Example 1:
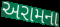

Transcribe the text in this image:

અરામના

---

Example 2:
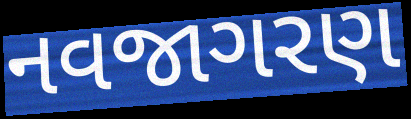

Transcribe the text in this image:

નવજાગરણ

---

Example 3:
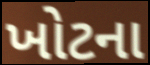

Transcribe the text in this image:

ખોટના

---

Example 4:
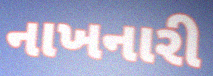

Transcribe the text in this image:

નાખનારી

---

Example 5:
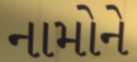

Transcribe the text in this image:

નામોને